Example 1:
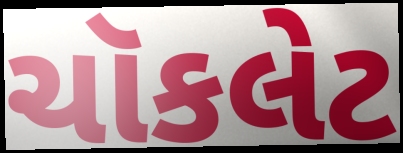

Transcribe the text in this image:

ચૉકલેટ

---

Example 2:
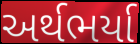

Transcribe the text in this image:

અર્થભર્યા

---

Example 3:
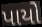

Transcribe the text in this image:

પાયો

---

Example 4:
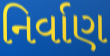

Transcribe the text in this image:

નિર્વાણ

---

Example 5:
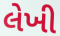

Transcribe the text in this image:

લેખી